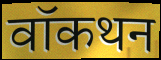
वॉकथन